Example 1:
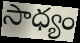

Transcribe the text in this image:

సాధ్యం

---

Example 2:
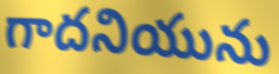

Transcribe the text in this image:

గాదనియును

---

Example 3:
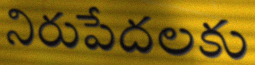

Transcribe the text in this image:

నిరుపేదలకు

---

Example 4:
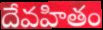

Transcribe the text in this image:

దేవహితం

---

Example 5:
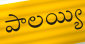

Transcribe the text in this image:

పాలయ్యి